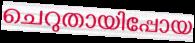
ചെറുതായിപ്പോയ